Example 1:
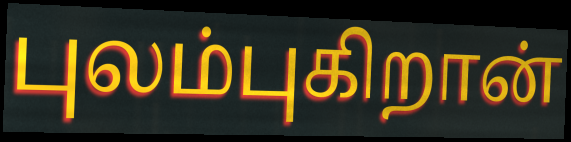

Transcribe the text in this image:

புலம்புகிறான்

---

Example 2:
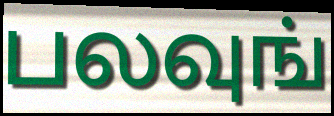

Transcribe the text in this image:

பலவுங்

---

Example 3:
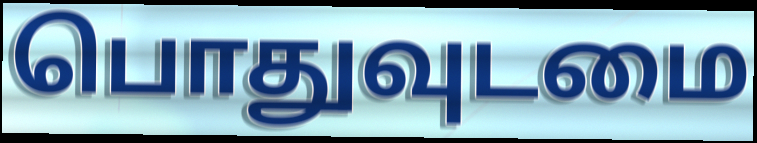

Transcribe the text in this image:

பொதுவுடமை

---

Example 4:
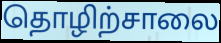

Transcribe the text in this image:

தொழிற்சாலை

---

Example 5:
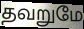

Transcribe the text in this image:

தவறுமே